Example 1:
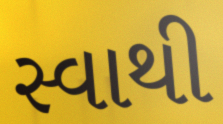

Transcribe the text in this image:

સ્વાથી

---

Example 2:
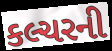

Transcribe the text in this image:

કલ્ચરની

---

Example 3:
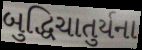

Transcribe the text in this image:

બુદ્ધિચાતુર્યના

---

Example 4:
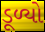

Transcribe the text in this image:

ડૂળ્યો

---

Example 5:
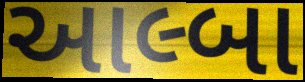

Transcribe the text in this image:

આલ્બા